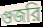
গুজরি